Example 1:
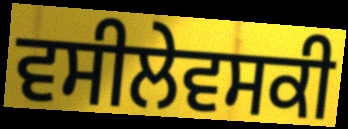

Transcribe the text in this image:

ਵਸੀਲੇਵਸਕੀ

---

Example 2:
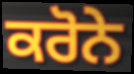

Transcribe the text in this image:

ਕਰੋਨੇ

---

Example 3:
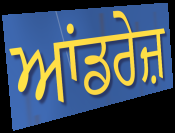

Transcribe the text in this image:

ਆਂਡਰੇਜ਼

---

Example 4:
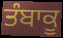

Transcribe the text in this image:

ਤੰਬਾਕੂ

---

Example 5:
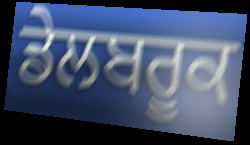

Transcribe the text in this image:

ਡੇਲਬਰੂਕ